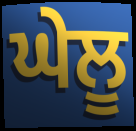
ਘੇਲੂ